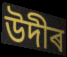
উদীৰ